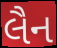
લૈન